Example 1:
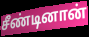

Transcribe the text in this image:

சீண்டினான்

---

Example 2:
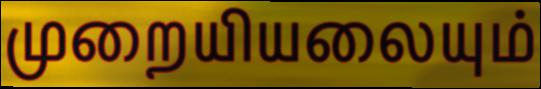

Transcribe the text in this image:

முறையியலையும்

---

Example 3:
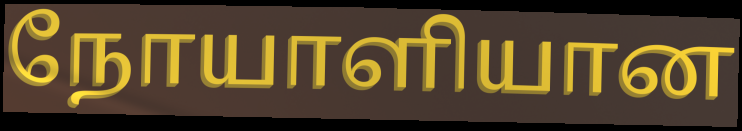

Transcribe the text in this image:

நோயாளியான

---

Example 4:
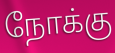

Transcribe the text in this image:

நோக்கு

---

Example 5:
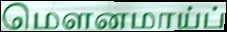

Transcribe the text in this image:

மௌனமாய்ப்